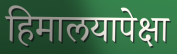
हिमालयापेक्षा